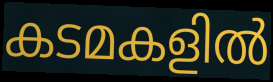
കടമകളിൽ